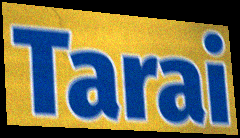
Tarai